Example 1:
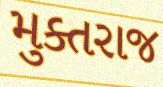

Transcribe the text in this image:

મુક્તરાજ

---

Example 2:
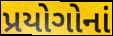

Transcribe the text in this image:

પ્રયોગોનાં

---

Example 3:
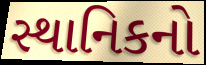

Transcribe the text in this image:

સ્થાનિકનો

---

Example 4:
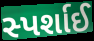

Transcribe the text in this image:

સ્પર્શાઈ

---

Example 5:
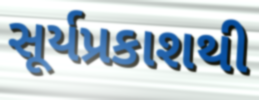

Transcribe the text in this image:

સૂર્યપ્રકાશથી